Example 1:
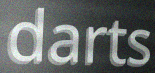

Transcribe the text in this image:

darts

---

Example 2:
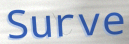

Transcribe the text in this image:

Surve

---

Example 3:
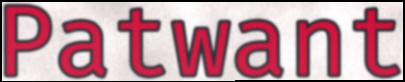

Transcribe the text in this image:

Patwant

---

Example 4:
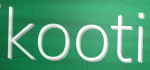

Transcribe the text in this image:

kooti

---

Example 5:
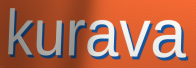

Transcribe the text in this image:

kurava